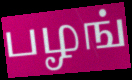
பழங்